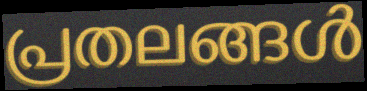
പ്രതലങ്ങൾ